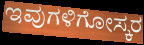
ಇವುಗಳಿಗೋಸ್ಕರ